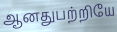
ஆனதுபற்றியே